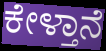
ಕೇಳ್ತಾನೆ